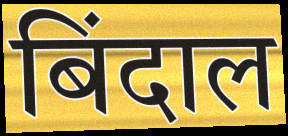
बिंदाल